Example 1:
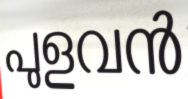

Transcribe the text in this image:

പുളവൻ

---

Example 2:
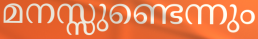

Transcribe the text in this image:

മനസ്സുണ്ടെന്നും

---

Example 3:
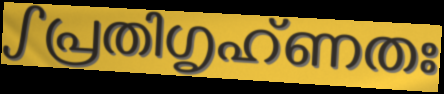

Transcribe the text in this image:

ഽപ്രതിഗൃഹ്ണതഃ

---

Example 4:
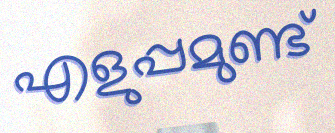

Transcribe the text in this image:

എളുപ്പമുണ്ട്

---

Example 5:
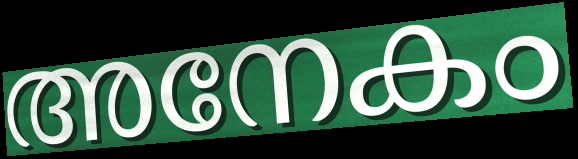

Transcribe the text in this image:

അനേകം